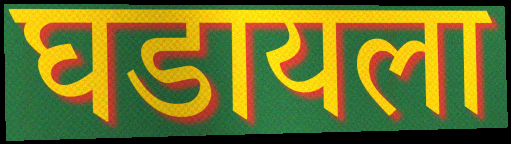
घडायला